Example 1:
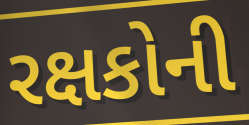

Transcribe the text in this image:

રક્ષકોની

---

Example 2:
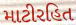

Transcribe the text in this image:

માટીરહિત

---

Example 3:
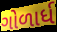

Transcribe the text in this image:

ગોળાર્ધ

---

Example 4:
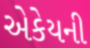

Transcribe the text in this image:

એકેયની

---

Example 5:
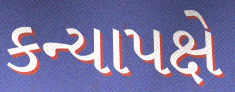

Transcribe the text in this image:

કન્યાપક્ષે